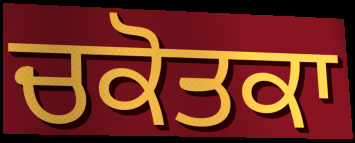
ਚਕੋਤਕਾ